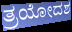
ತ್ರಯೋದಶ